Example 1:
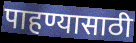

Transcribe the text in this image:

पाहण्यासाठी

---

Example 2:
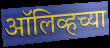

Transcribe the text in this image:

ऑलिव्हच्या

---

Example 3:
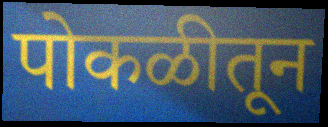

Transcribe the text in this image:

पोकळीतून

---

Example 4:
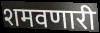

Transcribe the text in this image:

शमवणारी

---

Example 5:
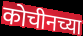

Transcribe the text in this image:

कोचीनच्या